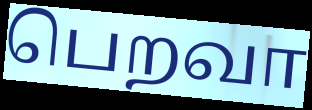
பெறவா